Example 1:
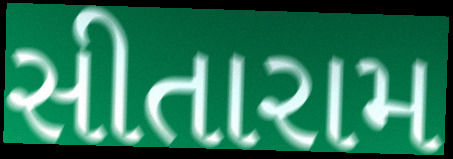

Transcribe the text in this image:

સીતારામ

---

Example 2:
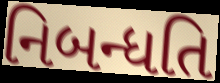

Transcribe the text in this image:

નિબન્ધતિ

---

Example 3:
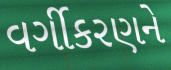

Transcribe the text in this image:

વર્ગીકરણને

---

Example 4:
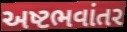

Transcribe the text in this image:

અષ્ટભવાંતર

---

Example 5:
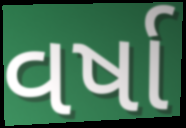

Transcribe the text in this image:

વર્ષા